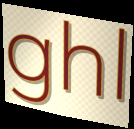
ghl